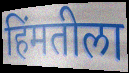
हिंमतीला